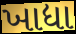
ખાદ્યા